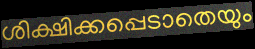
ശിക്ഷിക്കപ്പെടാതെയും